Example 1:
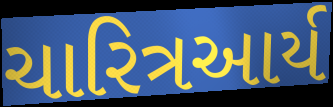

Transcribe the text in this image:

ચારિત્રઆર્ય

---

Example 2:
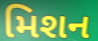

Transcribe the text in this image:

મિશન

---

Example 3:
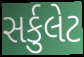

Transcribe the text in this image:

સર્કુલેટ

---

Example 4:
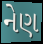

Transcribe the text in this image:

નેણ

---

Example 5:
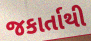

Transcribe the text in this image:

જકાર્તાથી